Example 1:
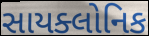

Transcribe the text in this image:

સાયક્લોનિક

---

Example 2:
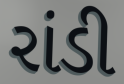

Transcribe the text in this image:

રાંડી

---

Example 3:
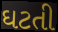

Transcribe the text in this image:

ઘટતી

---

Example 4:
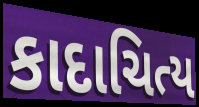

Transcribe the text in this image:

કાદાચિત્ય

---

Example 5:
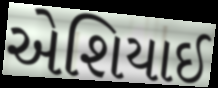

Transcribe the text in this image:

એશિયાઈ